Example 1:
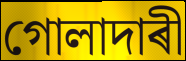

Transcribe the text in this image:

গোলাদাৰী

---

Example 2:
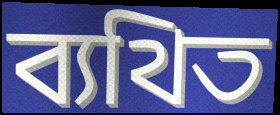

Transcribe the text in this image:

ব্যথিত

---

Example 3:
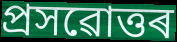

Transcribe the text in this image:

প্ৰসৱোত্তৰ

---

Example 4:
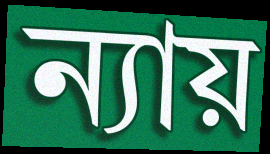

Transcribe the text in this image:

ন্যায়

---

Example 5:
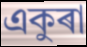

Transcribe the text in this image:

একুৰা